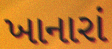
ખાનારાં